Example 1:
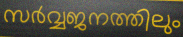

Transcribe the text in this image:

സർവ്വജനത്തിലും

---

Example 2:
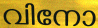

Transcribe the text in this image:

വിനോ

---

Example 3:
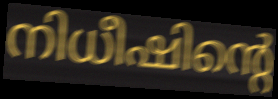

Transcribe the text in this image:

നിധീഷിന്റെ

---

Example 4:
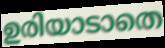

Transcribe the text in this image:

ഉരിയാടാതെ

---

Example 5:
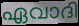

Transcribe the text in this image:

ഏവാദി